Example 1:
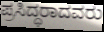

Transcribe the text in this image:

ಪ್ರಸಿದ್ಧರಾದವರು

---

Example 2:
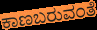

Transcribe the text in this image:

ಕಾಣಬರುವಂತೆ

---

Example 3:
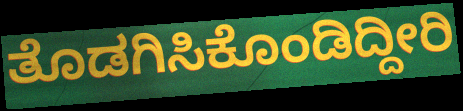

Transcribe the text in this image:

ತೊಡಗಿಸಿಕೊಂಡಿದ್ದೀರಿ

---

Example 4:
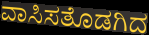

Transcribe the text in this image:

ವಾಸಿಸತೊಡಗಿದ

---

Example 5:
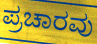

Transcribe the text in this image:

ಪ್ರಚಾರವು